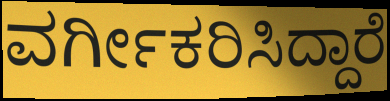
ವರ್ಗೀಕರಿಸಿದ್ದಾರೆ